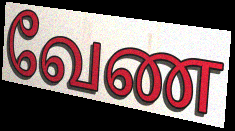
வேண